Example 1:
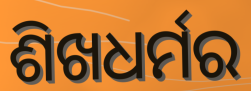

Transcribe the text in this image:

ଶିଖଧର୍ମର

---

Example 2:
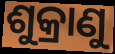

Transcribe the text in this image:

ଶୁକ୍ରାଣୁ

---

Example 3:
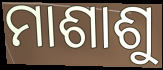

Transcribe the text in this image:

ମାଶାଶୁ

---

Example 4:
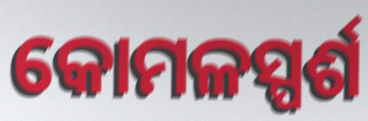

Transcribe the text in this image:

କୋମଳସ୍ପର୍ଶ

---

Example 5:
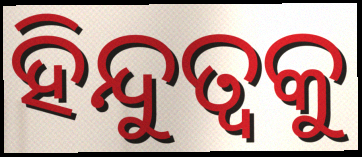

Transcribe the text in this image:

ହିନ୍ଦୁତ୍ୱକୁ